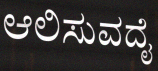
ಆಲಿಸುವದೈ